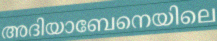
അദിയാബേനെയിലെ